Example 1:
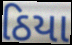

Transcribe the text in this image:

ઠિયા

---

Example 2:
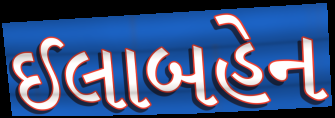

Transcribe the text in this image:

ઈલાબહેન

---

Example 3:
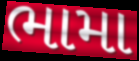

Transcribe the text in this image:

ભામા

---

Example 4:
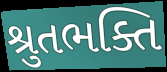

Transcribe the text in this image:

શ્રુતભક્તિ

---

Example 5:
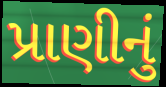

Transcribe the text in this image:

પ્રાણીનું